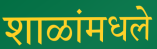
शाळांमधले